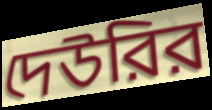
দেউরির